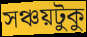
সঞ্চয়টুকু